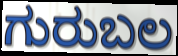
ಗುರುಬಲ